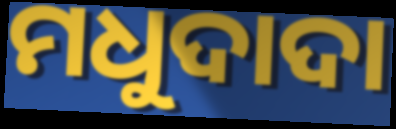
ମଧୁଦାଦା